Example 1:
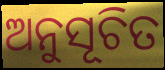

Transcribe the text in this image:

ଅନୁସୂଚିତ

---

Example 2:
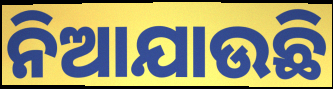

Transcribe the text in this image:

ନିଆଯାଉଛି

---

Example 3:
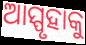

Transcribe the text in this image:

ଆସ୍ପୃହାକୁ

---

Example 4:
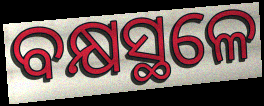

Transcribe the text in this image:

ବକ୍ଷସ୍ଥଳେ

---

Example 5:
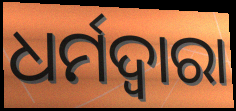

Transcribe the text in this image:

ଧର୍ମଦ୍ଵାରା